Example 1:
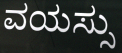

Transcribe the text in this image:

ವಯಸ್ಸು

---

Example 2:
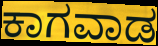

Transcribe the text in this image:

ಕಾಗವಾಡ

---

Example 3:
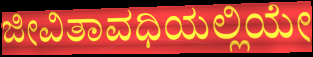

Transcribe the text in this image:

ಜೀವಿತಾವಧಿಯಲ್ಲಿಯೇ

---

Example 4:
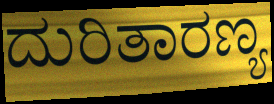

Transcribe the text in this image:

ದುರಿತಾರಣ್ಯ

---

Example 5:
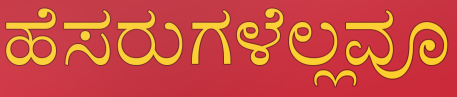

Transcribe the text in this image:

ಹೆಸರುಗಳೆಲ್ಲವೂ